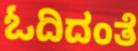
ಓದಿದಂತೆ